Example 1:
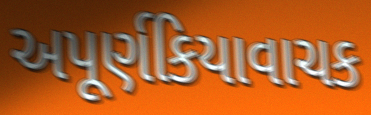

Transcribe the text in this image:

અપૂર્ણકિયાવાચક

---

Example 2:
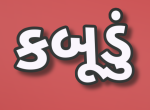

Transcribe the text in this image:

કબૂડું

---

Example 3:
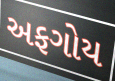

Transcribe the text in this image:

અફગોય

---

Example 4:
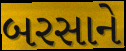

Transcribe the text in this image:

બરસાને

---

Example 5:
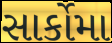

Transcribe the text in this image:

સાર્કોમા